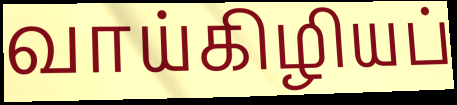
வாய்கிழியப்